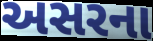
અસરના